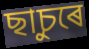
ছাচুৰে